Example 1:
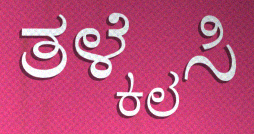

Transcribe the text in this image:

ತಳ್ಕೈಸಿ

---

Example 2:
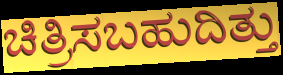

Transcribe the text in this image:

ಚಿತ್ರಿಸಬಹುದಿತ್ತು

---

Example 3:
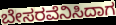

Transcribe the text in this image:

ಬೇಸರವೆನಿಸಿದಾಗ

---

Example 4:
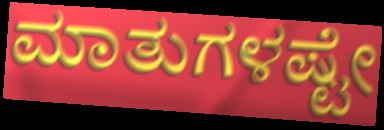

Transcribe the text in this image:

ಮಾತುಗಳಷ್ಟೇ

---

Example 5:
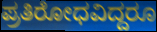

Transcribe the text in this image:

ಪ್ರತಿರೋಧವಿದ್ದರೂ